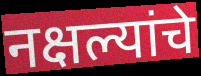
नक्षल्यांचे